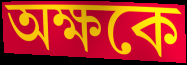
অক্ষকে